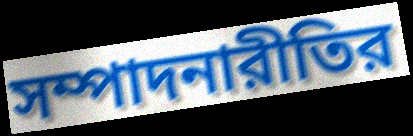
সম্পাদনারীতির